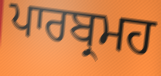
ਪਾਰਬ੍ਰਮਹ